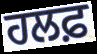
ਹਲਫ਼